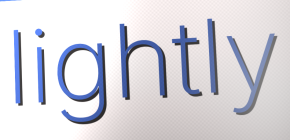
lightly